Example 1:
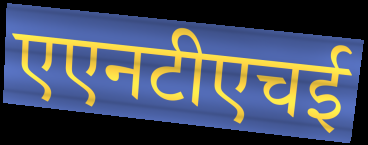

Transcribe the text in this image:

एएनटीएचई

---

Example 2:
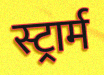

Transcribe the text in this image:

स्ट्रार्म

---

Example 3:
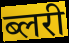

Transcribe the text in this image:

ब्लरी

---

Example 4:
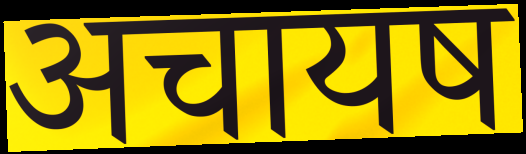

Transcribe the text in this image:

अचायष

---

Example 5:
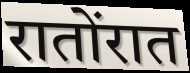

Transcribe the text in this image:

रातोंरात